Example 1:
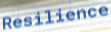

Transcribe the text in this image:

Resilience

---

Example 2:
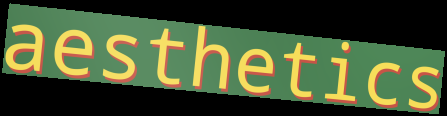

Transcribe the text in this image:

aesthetics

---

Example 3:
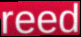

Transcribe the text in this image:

reed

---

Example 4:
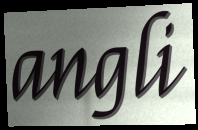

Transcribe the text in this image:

angli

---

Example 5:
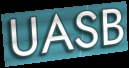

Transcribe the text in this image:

UASB